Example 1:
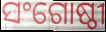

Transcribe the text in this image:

ସଂଗୋଷ୍ଠୀ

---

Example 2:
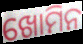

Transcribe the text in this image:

ଖୋମିନ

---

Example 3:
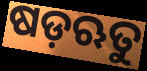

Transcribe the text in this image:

ଷଡ଼ଋତୁ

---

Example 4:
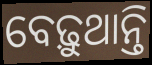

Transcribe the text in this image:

ବେଢ଼ୁଥାନ୍ତି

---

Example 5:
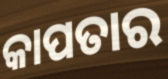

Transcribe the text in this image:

କାପତାର